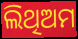
ଲିଥିଅମ